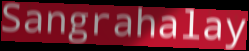
Sangrahalay